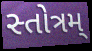
સ્તોત્રમ્